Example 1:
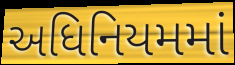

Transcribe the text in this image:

અધિનિયમમાં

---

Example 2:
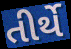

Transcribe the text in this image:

તીર્થે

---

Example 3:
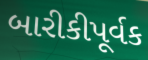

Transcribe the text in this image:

બારીકીપૂર્વક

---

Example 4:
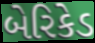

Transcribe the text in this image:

બેરિકેડ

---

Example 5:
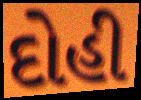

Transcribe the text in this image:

દોહી